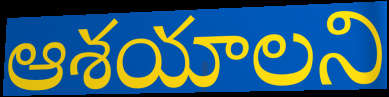
ఆశయాలని